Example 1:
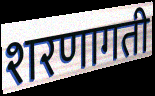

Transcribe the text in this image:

शरणागती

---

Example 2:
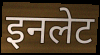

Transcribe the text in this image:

इनलेट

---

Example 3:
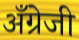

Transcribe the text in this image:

अँग्रेजी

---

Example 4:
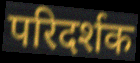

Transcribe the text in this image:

परिदर्शक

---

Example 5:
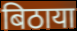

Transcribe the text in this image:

बिठाया